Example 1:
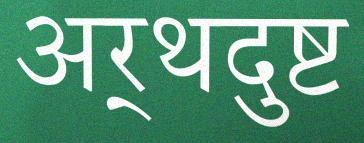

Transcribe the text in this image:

अर्थदुष्ट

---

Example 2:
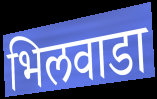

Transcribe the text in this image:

भिलवाडा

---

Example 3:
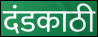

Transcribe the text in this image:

दंडकाठी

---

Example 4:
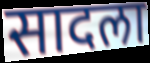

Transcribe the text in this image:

सादला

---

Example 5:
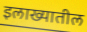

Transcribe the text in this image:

इलाख्यातील